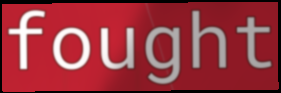
fought